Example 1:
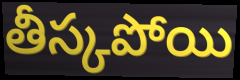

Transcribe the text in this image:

తీస్కపోయి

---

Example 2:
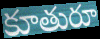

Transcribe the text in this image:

కూతురూ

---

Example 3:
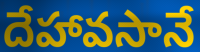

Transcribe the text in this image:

దేహావసానే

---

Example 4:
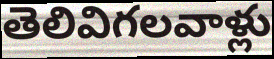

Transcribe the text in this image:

తెలివిగలవాళ్లు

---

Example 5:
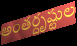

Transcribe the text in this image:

అంతర్దృష్టుల